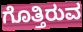
ಗೊತ್ತಿರುವ